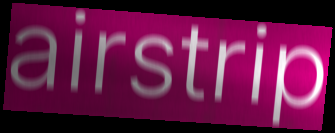
airstrip